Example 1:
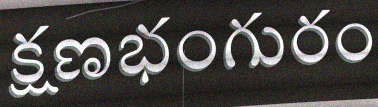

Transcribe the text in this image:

క్షణభంగురం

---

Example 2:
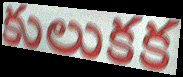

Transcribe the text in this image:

కులుకక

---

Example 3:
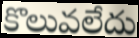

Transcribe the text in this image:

కొలువలేదు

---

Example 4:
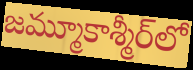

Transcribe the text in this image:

జమ్మూకాశ్మీర్‌లో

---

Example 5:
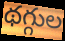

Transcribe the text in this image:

థగ్గుల